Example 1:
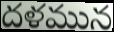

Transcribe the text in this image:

దళమున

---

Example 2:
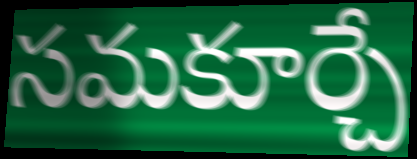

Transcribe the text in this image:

సమకూర్చే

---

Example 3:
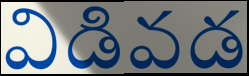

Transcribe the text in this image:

విడివడ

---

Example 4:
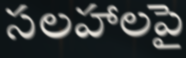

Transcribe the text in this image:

సలహాలపై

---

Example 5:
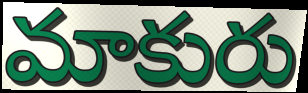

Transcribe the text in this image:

మాకురు